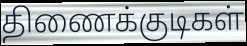
திணைக்குடிகள்